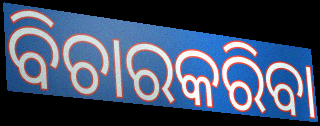
ବିଚାରକରିବା